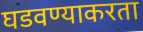
घडवण्याकरता